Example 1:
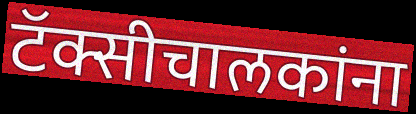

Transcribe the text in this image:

टॅक्सीचालकांना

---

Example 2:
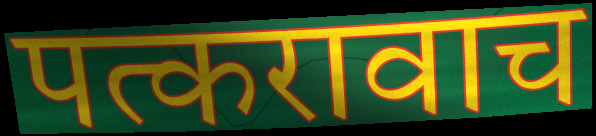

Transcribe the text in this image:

पत्करावाच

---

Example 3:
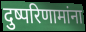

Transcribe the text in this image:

दुष्परिणामांना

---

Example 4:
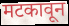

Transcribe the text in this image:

मटकावून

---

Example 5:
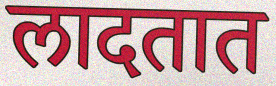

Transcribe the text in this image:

लादतात